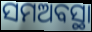
ସମଅବସ୍ଥା